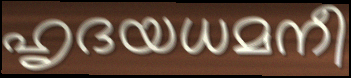
ഹൃദയധമനീ